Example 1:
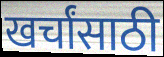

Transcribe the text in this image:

खर्चांसाठी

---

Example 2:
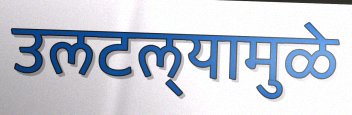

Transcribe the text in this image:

उलटल्यामुळे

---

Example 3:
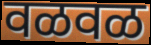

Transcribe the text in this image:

वळवळ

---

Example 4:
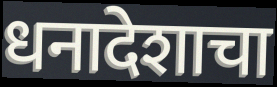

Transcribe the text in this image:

धनादेशाचा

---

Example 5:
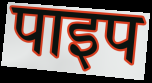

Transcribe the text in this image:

पाइप